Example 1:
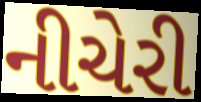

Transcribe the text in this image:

નીચેરી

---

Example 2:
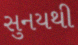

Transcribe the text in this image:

સુનયથી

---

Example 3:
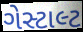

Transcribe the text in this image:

ગેસ્ટાલ્ટ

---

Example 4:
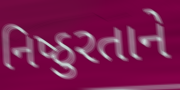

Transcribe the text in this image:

નિષ્ઠુરતાને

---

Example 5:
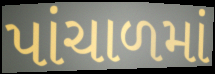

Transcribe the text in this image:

પાંચાળમાં